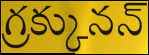
గ్రక్కునన్